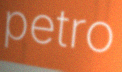
petro